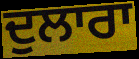
ਦੁਲਾਰਾ